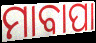
ମାବାପା